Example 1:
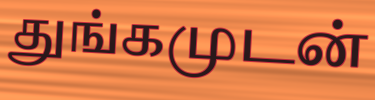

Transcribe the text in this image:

துங்கமுடன்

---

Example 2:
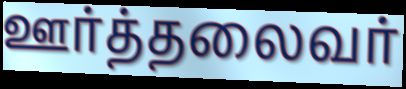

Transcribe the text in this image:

ஊர்த்தலைவர்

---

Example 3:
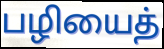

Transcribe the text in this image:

பழியைத்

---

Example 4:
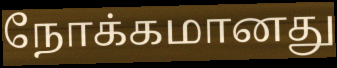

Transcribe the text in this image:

நோக்கமானது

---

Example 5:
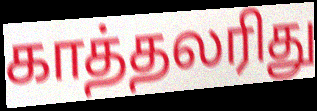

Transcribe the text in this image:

காத்தலரிது